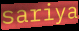
sariya